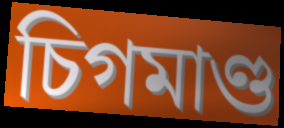
চিগমাণ্ড